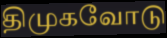
திமுகவோடு